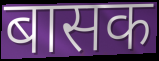
बासक